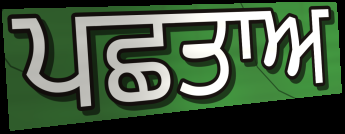
ਪਛਤਾਅ